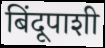
बिंदूपाशी